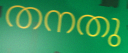
തനതു